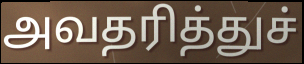
அவதரித்துச்